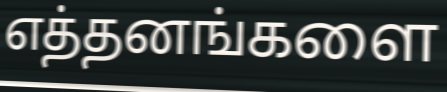
எத்தனங்களை